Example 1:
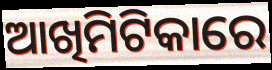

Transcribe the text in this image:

ଆଖିମିଟିକାରେ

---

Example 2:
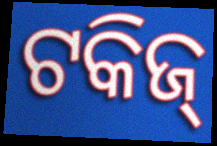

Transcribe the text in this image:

ଟକିଜ୍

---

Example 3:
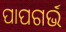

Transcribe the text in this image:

ପାପଗର୍ଭ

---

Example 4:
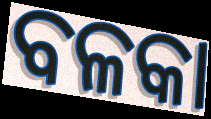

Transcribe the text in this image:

ବଳକା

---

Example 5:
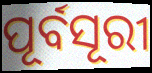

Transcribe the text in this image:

ପୂର୍ବସୂରୀ